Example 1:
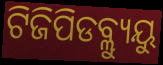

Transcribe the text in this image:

ଟିଜିପିଡବ୍ଲ୍ୟୁୟୁ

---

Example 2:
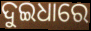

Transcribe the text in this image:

ଦୁଇଧାରେ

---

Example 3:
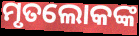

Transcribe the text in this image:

ମୃତଲୋକଙ୍କ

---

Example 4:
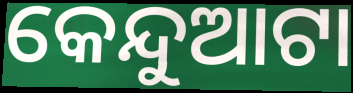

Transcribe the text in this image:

କେନ୍ଦୁଆଟା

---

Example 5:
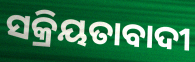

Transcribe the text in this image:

ସକ୍ରିୟତାବାଦୀ